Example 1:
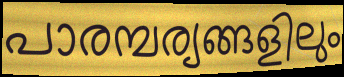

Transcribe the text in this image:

പാരമ്പര്യങ്ങളിലും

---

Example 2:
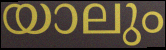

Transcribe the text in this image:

യാലും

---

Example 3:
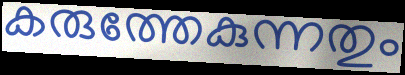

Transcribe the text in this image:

കരുത്തേകുന്നതും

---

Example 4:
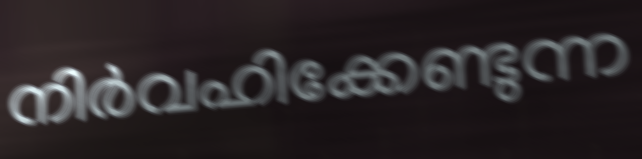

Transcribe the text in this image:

നിർവഹിക്കേണ്ടുന്ന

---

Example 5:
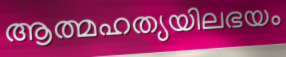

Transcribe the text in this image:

ആത്മഹത്യയിലഭയം